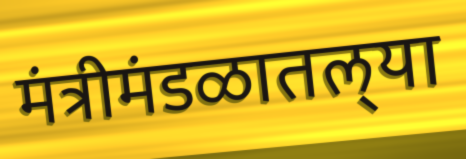
मंत्रीमंडळातल्या